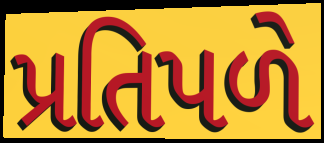
પ્રતિપળે